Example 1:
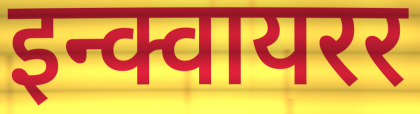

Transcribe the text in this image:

इन्क्वायरर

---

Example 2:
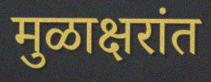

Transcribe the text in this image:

मुळाक्षरांत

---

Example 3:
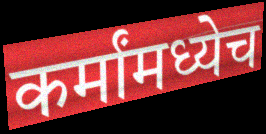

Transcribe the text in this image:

कर्मांमध्येच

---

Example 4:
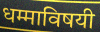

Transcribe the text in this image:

धम्माविषयी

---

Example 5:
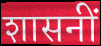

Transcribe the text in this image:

शासनीं